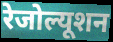
रेजोल्यूशन